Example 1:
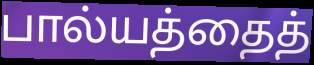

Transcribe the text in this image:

பால்யத்தைத்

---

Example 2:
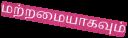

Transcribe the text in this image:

மற்றமையாகவும்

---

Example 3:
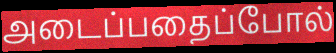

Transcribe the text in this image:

அடைப்பதைப்போல்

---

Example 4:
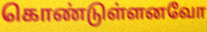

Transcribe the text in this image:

கொண்டுள்ளனவோ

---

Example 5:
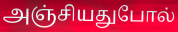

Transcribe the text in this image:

அஞ்சியதுபோல்